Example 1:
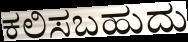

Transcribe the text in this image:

ಕಲಿಸಬಹುದು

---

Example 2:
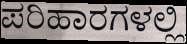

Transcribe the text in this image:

ಪರಿಹಾರಗಳಲ್ಲಿ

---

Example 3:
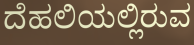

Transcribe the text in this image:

ದೆಹಲಿಯಲ್ಲಿರುವ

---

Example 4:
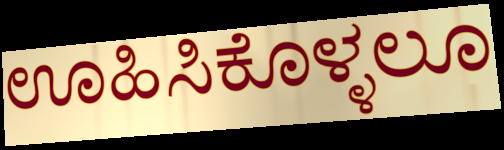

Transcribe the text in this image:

ಊಹಿಸಿಕೊಳ್ಳಲೂ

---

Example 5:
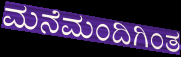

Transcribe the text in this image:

ಮನೆಮಂದಿಗಿಂತ